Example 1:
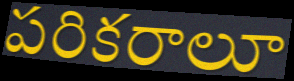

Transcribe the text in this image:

పరికరాలూ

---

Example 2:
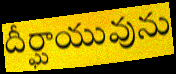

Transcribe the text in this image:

దీర్ఘాయువును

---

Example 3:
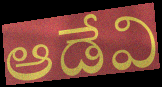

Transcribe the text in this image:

ఆడేవి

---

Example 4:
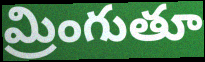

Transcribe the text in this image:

మ్రింగుతూ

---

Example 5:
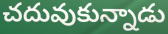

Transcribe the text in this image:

చదువుకున్నాడు